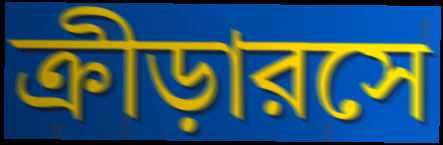
ক্রীড়ারসে